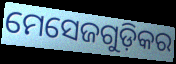
ମେସେଜଗୁଡ଼ିକର